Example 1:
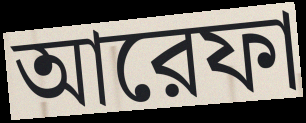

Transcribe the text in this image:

আরেফা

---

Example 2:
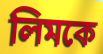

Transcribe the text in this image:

লিমকে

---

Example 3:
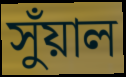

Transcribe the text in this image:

সুঁয়াল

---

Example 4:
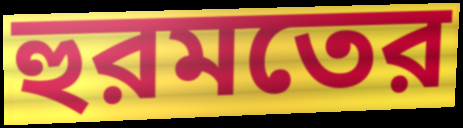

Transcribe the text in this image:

হুরমতের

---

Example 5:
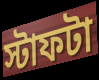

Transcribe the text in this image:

স্টাফটা